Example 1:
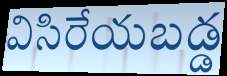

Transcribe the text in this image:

విసిరేయబడ్డ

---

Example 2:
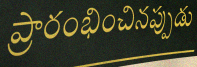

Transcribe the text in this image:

ప్రారంభించినప్పుడు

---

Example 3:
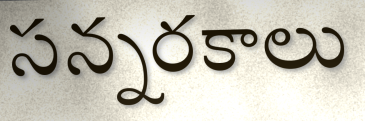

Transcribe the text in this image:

సన్నరకాలు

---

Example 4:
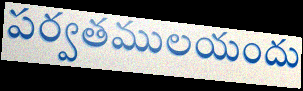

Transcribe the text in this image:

పర్వతములయందు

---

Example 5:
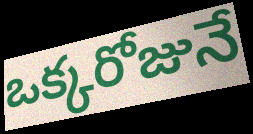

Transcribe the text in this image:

ఒక్కరోజునే